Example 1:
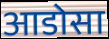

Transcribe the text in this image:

आडोसा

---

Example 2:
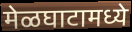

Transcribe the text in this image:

मेळघाटामध्ये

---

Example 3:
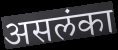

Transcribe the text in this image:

असलंका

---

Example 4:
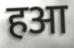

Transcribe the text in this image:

हआ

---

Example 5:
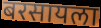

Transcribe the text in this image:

बरसायला